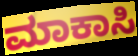
ಮಾಕಾಸಿ